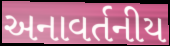
અનાવર્તનીય